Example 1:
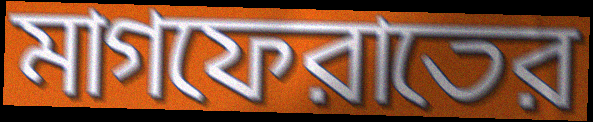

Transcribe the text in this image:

মাগফেরাতের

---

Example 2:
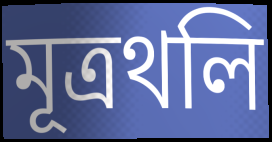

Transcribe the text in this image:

মূত্রথলি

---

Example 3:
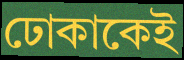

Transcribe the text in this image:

ঢোকাকেই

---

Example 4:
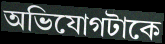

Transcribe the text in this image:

অভিযোগটাকে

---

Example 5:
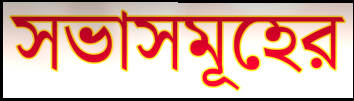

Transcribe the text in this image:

সভাসমূহের